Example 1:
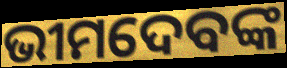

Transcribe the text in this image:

ଭୀମଦେବଙ୍କ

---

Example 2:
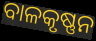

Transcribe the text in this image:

ବାଳକୃଷ୍ଣନ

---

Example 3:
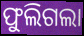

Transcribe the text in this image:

ଫୁଲିଗଲା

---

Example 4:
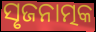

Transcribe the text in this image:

ସୃଜନାତ୍ମକ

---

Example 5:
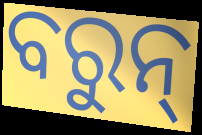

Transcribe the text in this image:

ବରୁନ୍